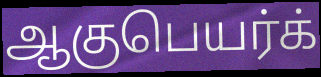
ஆகுபெயர்க்